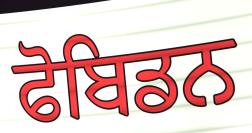
ਫੋਬਿਡਨ